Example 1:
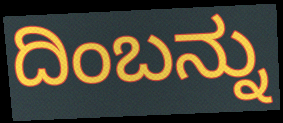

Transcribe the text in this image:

ದಿಂಬನ್ನು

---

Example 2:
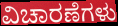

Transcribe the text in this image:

ವಿಚಾರಣೆಗಳು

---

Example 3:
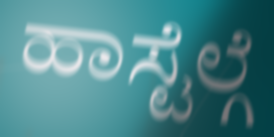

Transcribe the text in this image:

ಹಾಸ್ಟೆಲ್ಗೆ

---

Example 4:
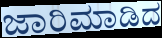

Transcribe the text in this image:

ಜಾರಿಮಾಡಿದ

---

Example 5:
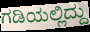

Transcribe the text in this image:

ಗಡಿಯಲ್ಲಿದ್ದು